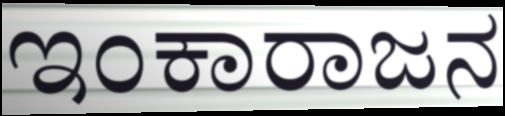
ಇಂಕಾರಾಜನ